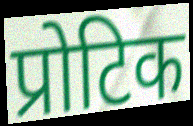
प्रोटिक